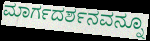
ಮಾರ್ಗದರ್ಶನವನ್ನೂ